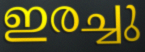
ഇരച്ചു